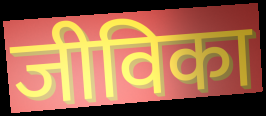
जीविका